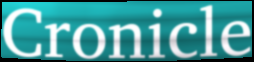
Cronicle